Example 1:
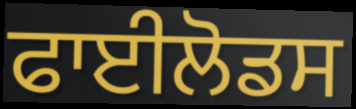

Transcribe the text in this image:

ਫਾਈਲੋਡਸ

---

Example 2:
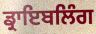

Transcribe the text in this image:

ਡ੍ਰਾਇਬਲਿੰਗ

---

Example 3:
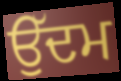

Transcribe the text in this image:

ਉੱਦਮ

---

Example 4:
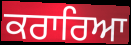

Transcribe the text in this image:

ਕਰਾਰਿਆ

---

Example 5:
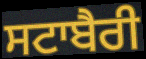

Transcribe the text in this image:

ਸਟਾਬੈਰੀ